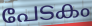
പേടകം